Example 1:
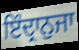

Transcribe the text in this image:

ਇੰਦ੍ਰਾਨੁਜਾ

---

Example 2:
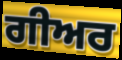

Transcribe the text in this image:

ਗੀਅਰ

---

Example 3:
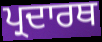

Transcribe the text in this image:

ਪ੍ਰਦਾਰਥ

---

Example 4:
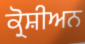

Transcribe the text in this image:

ਕ੍ਰੋਸ਼ੀਅਨ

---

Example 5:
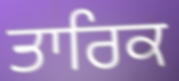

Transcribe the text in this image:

ਤਾਰਿਕ